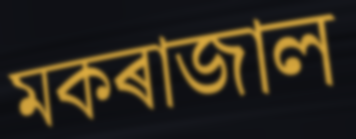
মকৰাজাল